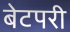
बेटपरी